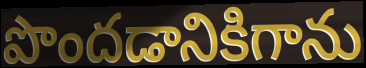
పొందడానికిగాను